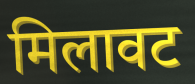
मिलावट